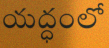
యద్ధంలో